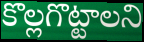
కొల్లగొట్టాలని